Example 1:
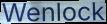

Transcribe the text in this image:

Wenlock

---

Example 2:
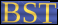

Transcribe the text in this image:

BST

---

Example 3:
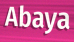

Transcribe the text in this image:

Abaya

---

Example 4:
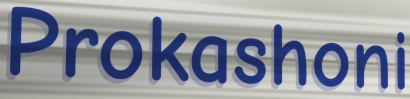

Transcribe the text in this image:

Prokashoni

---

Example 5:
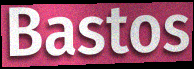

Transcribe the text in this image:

Bastos